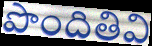
పొందితివి